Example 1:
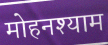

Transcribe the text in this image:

मोहनश्याम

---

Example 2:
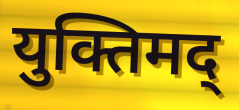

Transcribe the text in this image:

युक्तिमद्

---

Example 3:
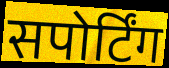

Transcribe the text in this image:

सपोर्टिंग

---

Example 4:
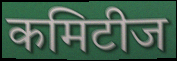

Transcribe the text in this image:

कमिटीज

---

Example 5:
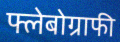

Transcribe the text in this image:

फ्लेबोग्राफी